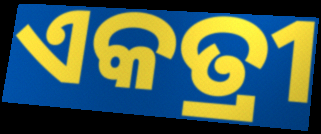
ଏକତ୍ରୀ